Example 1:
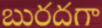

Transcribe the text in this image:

బురదగా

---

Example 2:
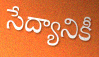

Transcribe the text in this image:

సేద్యానికీ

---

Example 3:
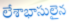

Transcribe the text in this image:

లేశాభాసులైన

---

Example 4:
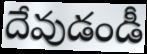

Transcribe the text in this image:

దేవుడండీ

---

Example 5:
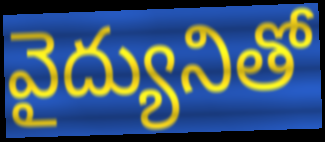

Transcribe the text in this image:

వైద్యునితో